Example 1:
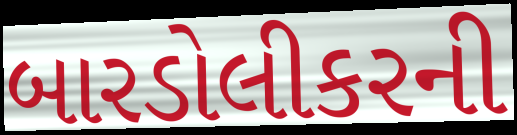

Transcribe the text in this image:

બારડોલીકરની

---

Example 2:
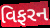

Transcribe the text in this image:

વિફરન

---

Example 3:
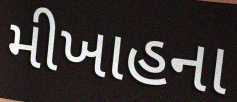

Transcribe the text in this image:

મીખાહના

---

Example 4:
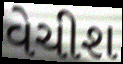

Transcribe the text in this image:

વેચીશ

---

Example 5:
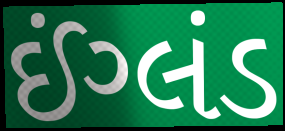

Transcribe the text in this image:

ઈંગ્લંડ